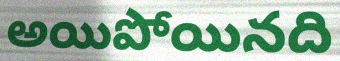
అయిపోయినది